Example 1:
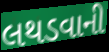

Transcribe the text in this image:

લથડવાની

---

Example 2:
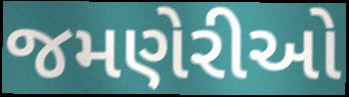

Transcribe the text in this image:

જમણેરીઓ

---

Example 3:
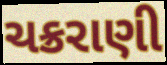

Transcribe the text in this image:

ચક્રરાણી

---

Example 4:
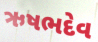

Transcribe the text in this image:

ઋષભદેવ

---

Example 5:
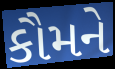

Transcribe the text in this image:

કૌમને